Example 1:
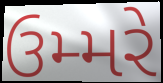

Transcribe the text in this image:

ઉમ્મરે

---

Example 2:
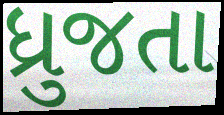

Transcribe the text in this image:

ધ્રુજતા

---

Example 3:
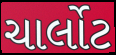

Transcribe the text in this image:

ચાર્લોટ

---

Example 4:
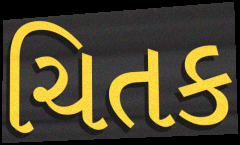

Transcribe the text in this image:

ચિતક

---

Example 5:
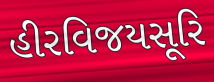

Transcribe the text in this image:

હીરવિજયસૂરિ